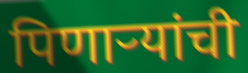
पिणाऱ्यांची